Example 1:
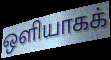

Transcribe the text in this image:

ஒளியாகக்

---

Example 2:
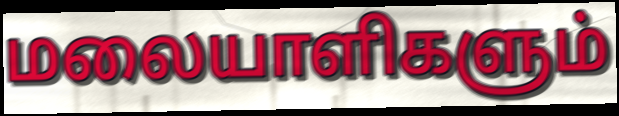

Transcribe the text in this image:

மலையாளிகளும்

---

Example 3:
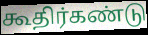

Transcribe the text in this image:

கூதிர்கண்டு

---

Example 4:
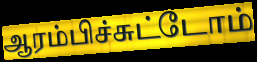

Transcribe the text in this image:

ஆரம்பிச்சுட்டோம்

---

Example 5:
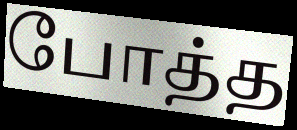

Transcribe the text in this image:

போத்த